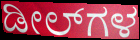
ಡೀಲ್‌ಗಳ